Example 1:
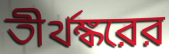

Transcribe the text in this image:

তীর্থঙ্করের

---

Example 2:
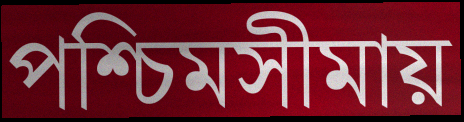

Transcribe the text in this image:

পশ্চিমসীমায়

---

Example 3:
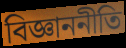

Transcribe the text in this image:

বিজ্ঞাননীতি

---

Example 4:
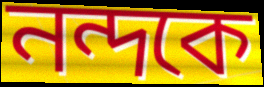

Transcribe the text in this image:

নন্দকে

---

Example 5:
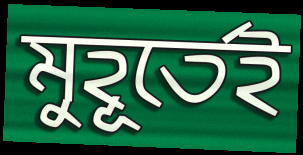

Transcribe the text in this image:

মুহূর্তেই